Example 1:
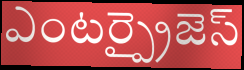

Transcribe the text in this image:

ఎంటర్ప్రైజెస్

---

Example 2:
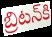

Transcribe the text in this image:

బ్రిటన్‌కి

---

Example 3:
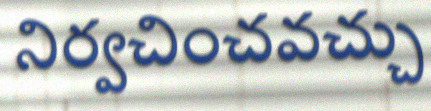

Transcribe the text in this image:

నిర్వచించవచ్చు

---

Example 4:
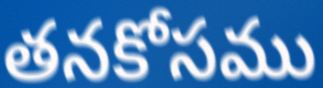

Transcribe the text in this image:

తనకోసము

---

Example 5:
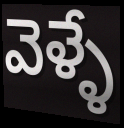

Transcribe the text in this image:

వెళ్ళే